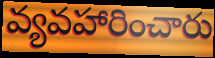
వ్యవహారించారు